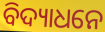
ବିଦ୍ୟାଧନେ